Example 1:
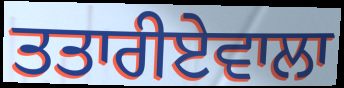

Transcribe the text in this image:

ਤਤਾਰੀਏਵਾਲਾ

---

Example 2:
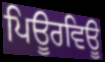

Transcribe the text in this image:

ਪਿਊਰਵਿਊ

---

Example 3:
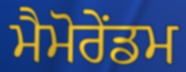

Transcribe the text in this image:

ਮੈਮੋਰੇਂਡਮ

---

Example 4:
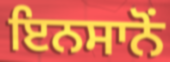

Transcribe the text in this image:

ਇਨਸਾਨੋਂ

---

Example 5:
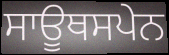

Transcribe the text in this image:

ਸਾਊਥਸਪੇਨ